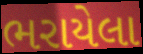
ભરાયેલા